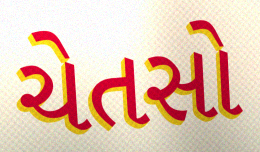
ચેતસો